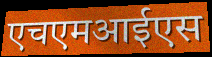
एचएमआईएस